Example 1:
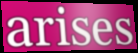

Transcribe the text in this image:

arises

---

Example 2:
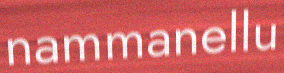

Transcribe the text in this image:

nammanellu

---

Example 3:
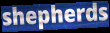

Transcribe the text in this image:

shepherds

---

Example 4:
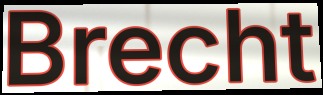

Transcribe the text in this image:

Brecht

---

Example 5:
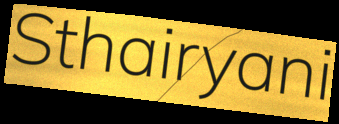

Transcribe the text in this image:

Sthairyani